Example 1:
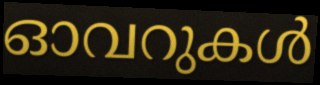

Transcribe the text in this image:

ഓവറുകൾ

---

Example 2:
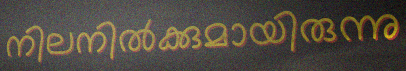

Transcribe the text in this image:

നിലനിൽക്കുമായിരുന്നു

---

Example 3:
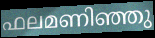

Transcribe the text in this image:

ഫലമണിഞ്ഞു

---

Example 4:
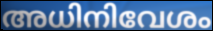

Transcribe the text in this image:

അധിനിവേശം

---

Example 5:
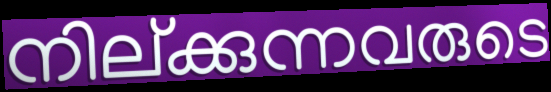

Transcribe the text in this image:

നില്ക്കുന്നവരുടെ